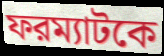
ফরম্যাটকে